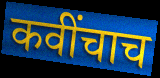
कवींचाच